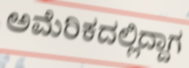
ಅಮೆರಿಕದಲ್ಲಿದ್ದಾಗ